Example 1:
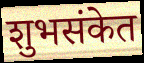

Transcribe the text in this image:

शुभसंकेत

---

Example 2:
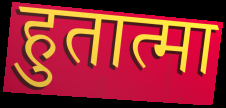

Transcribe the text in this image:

हुतात्मा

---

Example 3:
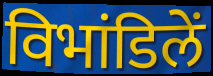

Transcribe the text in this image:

विभांडिलें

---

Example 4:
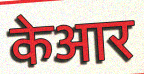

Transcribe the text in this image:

केआर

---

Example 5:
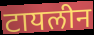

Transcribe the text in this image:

टायलीन